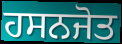
ਹਸਨਜੋਤ